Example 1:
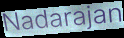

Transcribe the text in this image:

Nadarajan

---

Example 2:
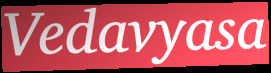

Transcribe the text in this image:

Vedavyasa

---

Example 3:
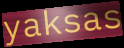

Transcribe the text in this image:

yaksas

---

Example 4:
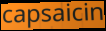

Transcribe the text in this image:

capsaicin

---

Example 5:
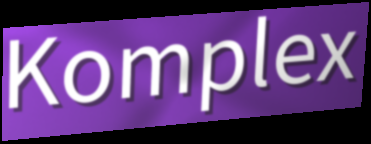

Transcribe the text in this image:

Komplex